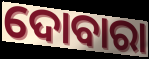
ଦୋବାରା